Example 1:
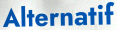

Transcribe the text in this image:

Alternatif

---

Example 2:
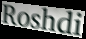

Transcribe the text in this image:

Roshdi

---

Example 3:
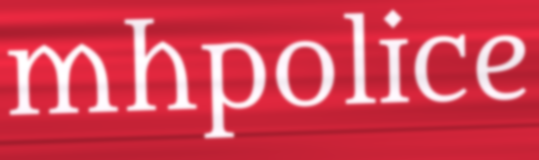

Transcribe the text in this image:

mhpolice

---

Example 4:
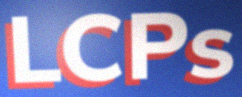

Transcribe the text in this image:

LCPs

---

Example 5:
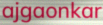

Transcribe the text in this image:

ajgaonkar